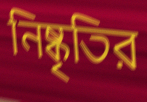
নিষ্কৃতির